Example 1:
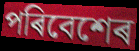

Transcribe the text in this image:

পৰিবেশেৰ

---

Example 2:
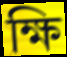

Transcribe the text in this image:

ক্ষি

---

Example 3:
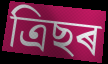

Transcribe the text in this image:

ত্ৰিছৰ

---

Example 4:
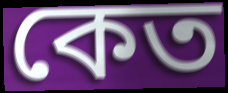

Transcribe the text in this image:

কেত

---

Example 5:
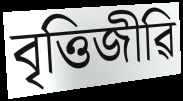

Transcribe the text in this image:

বৃত্তিজীৱি